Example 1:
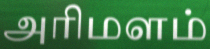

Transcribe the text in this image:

அரிமளம்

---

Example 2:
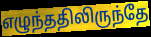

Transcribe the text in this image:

எழுந்ததிலிருந்தே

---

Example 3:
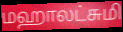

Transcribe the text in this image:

மஹாலட்சுமி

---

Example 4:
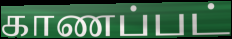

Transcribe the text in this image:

காணப்பட்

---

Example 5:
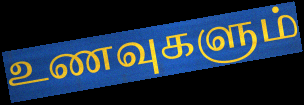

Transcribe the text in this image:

உணவுகளும்